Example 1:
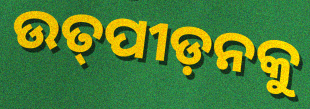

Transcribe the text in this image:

ଉତ୍‌ପୀଡ଼ନକୁ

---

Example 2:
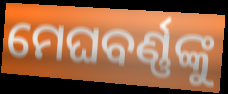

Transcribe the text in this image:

ମେଘବର୍ଣ୍ଣଙ୍କୁ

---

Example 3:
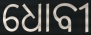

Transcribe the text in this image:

ଧୋବୀ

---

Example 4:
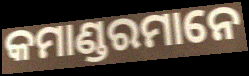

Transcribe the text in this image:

କମାଣ୍ଡରମାନେ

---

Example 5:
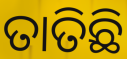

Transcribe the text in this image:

ତାତିଛି